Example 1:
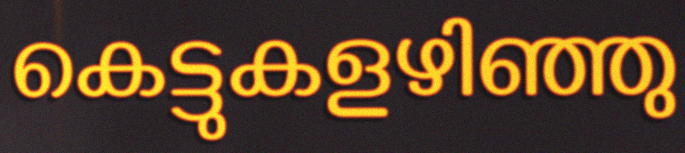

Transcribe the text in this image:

കെട്ടുകളഴിഞ്ഞു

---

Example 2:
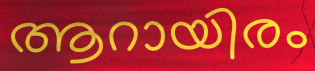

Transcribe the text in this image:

ആറായിരം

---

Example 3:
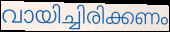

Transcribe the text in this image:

വായിച്ചിരിക്കണം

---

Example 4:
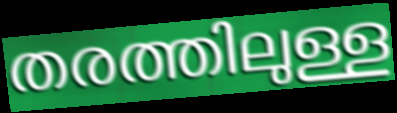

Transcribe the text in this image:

തരത്തിലുള്ള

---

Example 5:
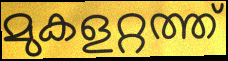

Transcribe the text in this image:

മുകളറ്റത്ത്